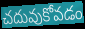
చదువుకోవడం